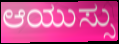
ಆಯುಸ್ಸು